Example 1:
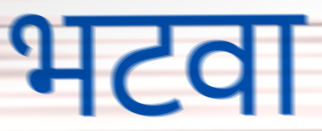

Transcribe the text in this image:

भटवा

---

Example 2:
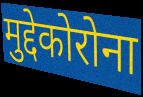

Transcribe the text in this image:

मुद्देकोरोना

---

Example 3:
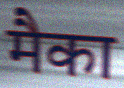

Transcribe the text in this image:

मैका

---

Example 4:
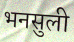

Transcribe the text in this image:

भनसुली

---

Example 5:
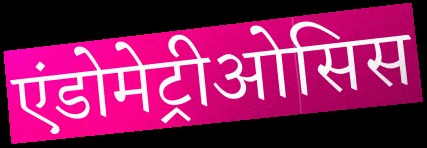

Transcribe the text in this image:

एंडोमेट्रीओसिस